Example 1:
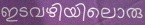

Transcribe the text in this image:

ഇടവഴിയിലൊരു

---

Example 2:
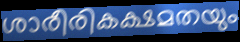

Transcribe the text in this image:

ശാരീരികക്ഷമതയും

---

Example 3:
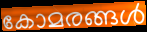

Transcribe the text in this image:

കോമരങ്ങൾ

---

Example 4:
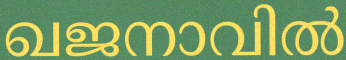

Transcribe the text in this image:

ഖജനാവിൽ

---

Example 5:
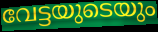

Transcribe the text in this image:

വേട്ടയുടെയും